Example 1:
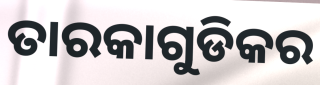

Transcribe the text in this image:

ତାରକାଗୁଡିକର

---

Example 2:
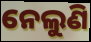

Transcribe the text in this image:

ନେଲୁଣି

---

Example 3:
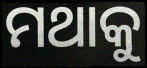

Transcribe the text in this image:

ମଥାକୁ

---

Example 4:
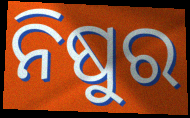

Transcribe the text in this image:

ନିଷୁର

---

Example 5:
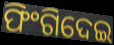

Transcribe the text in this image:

ଫିଂଗିଦେଇ